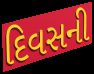
દિવસની